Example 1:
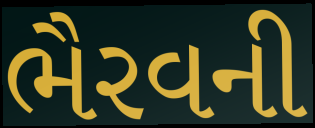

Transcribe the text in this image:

ભૈરવની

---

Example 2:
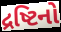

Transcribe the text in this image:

દ્રષ્ટિનો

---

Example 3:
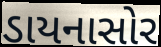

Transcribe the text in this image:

ડાયનાસોર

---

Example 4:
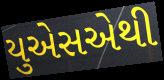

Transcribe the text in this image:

યુએસએથી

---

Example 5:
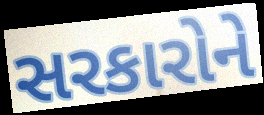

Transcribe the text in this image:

સરકારોને